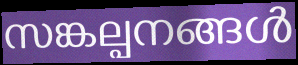
സങ്കല്പനങ്ങൾ